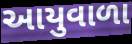
આયુવાળા